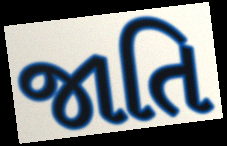
જાતિ